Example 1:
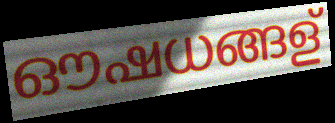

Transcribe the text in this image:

ഔഷധങ്ങള്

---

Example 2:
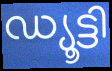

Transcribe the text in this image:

ഡ്യൂട്ടി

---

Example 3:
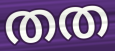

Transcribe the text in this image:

തത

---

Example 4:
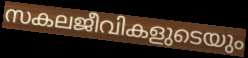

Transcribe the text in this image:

സകലജീവികളുടെയും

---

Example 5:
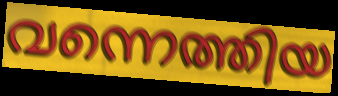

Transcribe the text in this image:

വന്നെത്തിയ